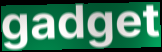
gadget